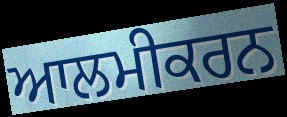
ਆਲਮੀਕਰਨ